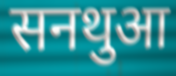
सनथुआ